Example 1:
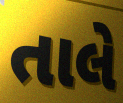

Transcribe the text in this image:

તાલે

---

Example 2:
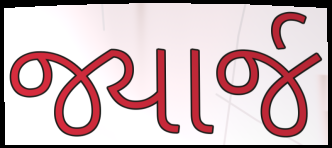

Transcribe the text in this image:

જ્યાર્જ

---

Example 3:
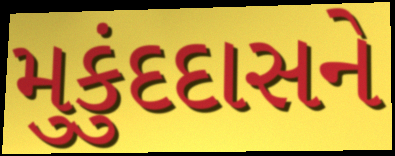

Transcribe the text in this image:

મુકુંદદાસને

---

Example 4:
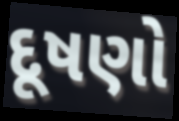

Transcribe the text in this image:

દૂષણો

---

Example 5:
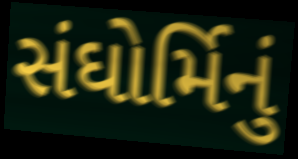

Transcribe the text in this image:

સંઘોર્મિનું